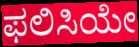
ಫಲಿಸಿಯೇ